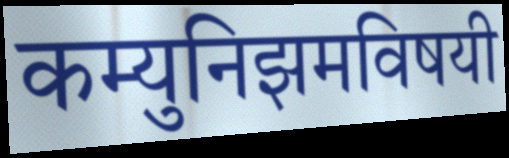
कम्युनिझमविषयी